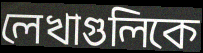
লেখাগুলিকে